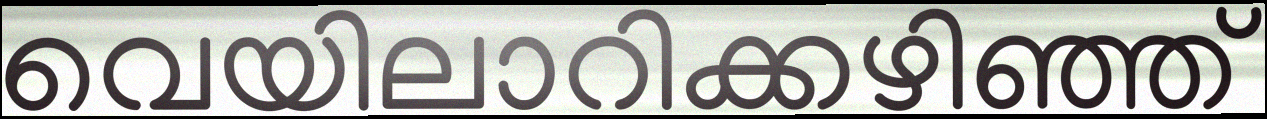
വെയിലാറിക്കഴിഞ്ഞ്